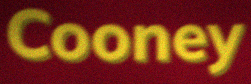
Cooney